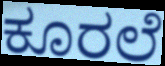
ಕೂರಲೆ